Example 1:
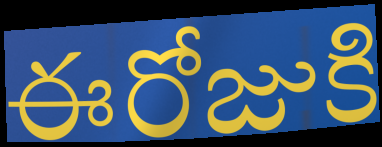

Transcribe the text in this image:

ఈరోజుకి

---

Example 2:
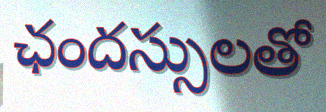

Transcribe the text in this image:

ఛందస్సులతో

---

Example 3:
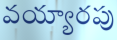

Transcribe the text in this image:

వయ్యారపు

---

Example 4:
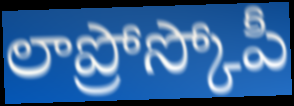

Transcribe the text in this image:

లాప్రోస్కోపీ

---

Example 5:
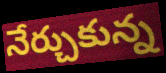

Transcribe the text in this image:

నేర్చుకున్న